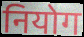
नियोग